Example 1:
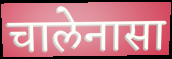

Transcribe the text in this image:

चालेनासा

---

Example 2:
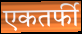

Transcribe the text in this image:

एकतर्फी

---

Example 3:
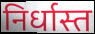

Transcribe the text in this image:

निर्धास्त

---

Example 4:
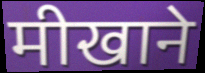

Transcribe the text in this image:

मीखाने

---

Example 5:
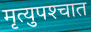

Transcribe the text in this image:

मृत्युपश्‍चात